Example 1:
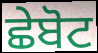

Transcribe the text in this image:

ਛੇਬੋਟ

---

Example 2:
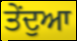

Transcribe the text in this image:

ਤੇਂਦੁਆ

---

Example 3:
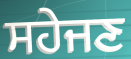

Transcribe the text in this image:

ਸਹੇਜਣ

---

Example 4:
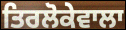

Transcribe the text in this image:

ਤਿਰਲੋਕੇਵਾਲਾ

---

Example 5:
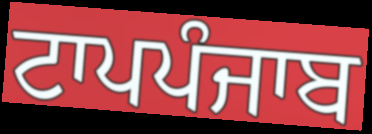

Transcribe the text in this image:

ਟਾਪਪੰਜਾਬ